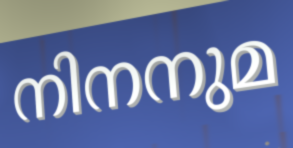
നിനനുമ